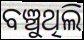
ବଞ୍ଚୁଥିଲି